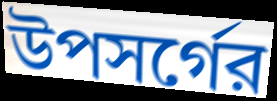
উপসর্গের